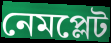
নেমপ্লেট